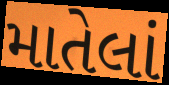
માતેલાં